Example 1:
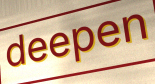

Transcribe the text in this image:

deepen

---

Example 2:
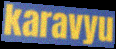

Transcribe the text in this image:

karavyu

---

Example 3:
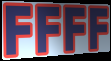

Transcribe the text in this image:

FFFF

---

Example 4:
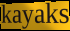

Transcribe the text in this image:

kayaks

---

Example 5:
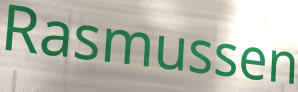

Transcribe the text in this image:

Rasmussen